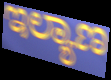
ಇಲ್ಯಾಣ